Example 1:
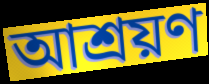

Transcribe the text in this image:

আশ্রয়ণ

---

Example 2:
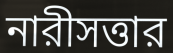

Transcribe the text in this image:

নারীসত্তার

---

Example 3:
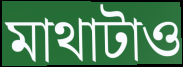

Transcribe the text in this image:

মাথাটাও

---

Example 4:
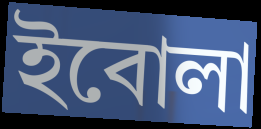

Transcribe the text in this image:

ইবোলা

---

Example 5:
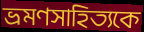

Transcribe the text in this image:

ভ্রমণসাহিত্যকে